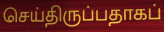
செய்திருப்பதாகப்